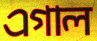
এগাল